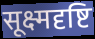
सूक्ष्मदृष्टि